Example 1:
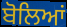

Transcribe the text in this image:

ਬੋਲਿਆਂ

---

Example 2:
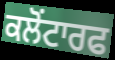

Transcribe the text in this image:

ਕਲੋਂਟਾਰਫ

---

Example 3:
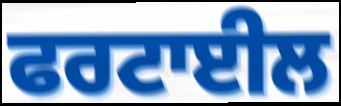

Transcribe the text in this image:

ਫਰਟਾਈਲ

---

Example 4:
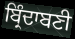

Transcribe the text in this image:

ਬ੍ਰਿੰਦਾਬਣੀ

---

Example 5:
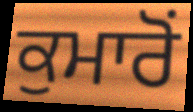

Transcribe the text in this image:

ਕੁਮਾਰੋਂ